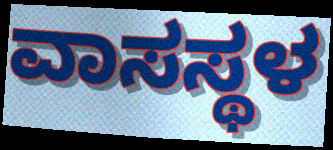
ವಾಸಸ್ಥಳ